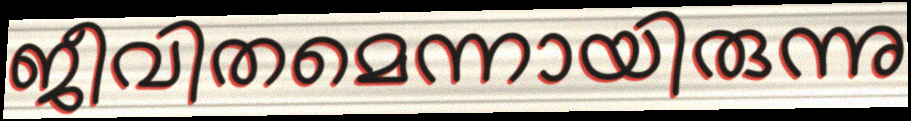
ജീവിതമെന്നായിരുന്നു